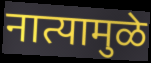
नात्यामुळे